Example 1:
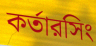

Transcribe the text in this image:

কর্তারসিং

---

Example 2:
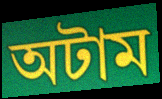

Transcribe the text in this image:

অটাম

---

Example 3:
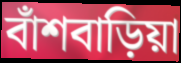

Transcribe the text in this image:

বাঁশবাড়িয়া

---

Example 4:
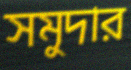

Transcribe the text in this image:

সমুদার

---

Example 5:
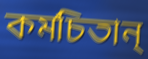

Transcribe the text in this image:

কর্মচিতান্